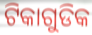
ଟିକାଗୁଡିକ